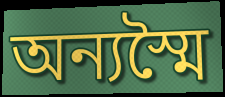
অন্যস্মৈ